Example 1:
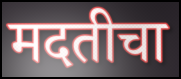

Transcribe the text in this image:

मदतीचा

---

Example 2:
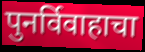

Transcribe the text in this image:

पुनर्विवाहाचा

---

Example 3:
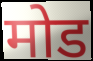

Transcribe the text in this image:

मोड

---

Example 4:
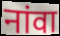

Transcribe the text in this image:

नांवा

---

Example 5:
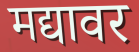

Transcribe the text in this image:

मद्यावर